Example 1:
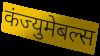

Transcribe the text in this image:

कंज्युमेबल्स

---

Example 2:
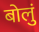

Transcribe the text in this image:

बोलुं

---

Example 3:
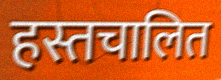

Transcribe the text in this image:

हस्तचालित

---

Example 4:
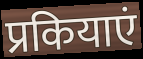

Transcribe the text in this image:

प्रकियाएं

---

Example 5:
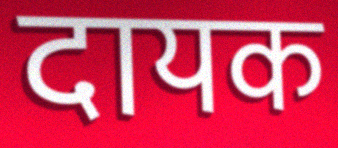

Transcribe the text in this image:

दायक